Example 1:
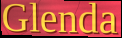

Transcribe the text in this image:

Glenda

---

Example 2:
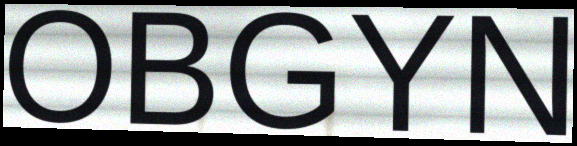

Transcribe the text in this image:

OBGYN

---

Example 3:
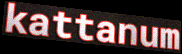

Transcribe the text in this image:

kattanum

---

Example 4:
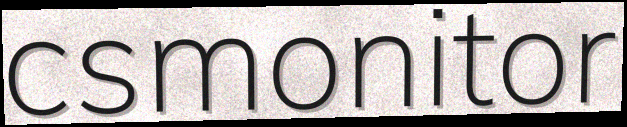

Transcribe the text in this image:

csmonitor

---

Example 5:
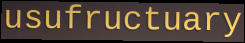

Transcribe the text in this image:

usufructuary